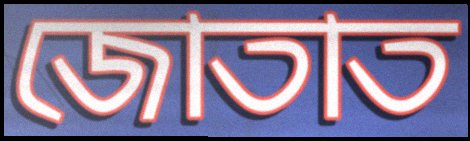
জোতাত